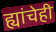
ह्यांचेही